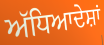
ਅੱਧਿਆਦੇਸ਼ਾਂ